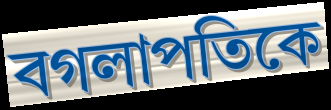
বগলাপতিকে